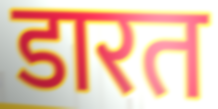
डारत